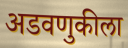
अडवणुकीला